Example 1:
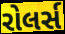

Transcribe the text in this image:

રોલર્સ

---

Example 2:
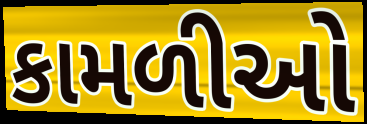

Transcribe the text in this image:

કામળીઓ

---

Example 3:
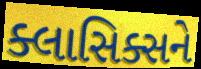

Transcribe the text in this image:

ક્લાસિક્સને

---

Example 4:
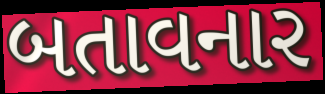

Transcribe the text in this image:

બતાવનાર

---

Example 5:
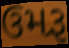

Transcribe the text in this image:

ઉમરૂ